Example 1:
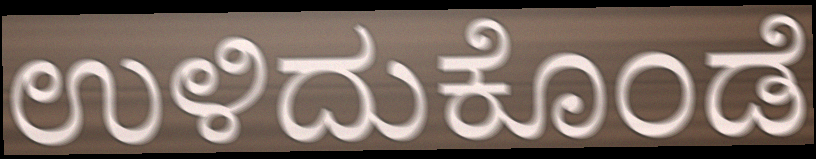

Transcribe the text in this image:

ಉಳಿದುಕೊಂಡೆ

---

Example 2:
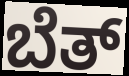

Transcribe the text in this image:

ಬೆತ್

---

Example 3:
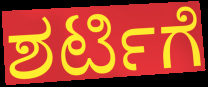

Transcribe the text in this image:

ಶರ್ಟಿಗೆ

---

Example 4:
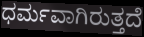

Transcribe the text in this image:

ಧರ್ಮವಾಗಿರುತ್ತದೆ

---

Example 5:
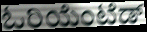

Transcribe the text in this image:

ಓರಿಯೆಂಟೆಡ್